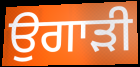
ਉਗਾੜੀ